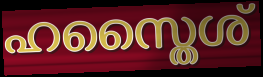
ഹസ്തൈശ്